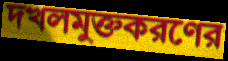
দখলমুক্তকরণের